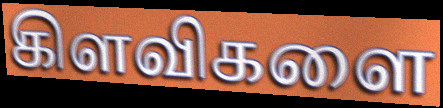
கிளவிகளை